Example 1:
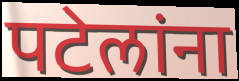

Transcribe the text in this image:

पटेलांना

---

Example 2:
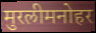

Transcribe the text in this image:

मुरलीमनोहर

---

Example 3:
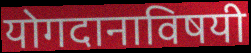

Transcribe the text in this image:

योगदानाविषयी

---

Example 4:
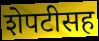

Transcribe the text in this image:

शेपटीसह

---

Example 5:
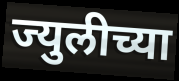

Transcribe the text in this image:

ज्युलीच्या